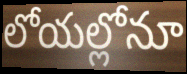
లోయల్లోనూ